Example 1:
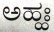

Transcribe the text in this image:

ಅಹ್ಹಃ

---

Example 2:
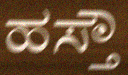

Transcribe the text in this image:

ಹಸ್ತೌ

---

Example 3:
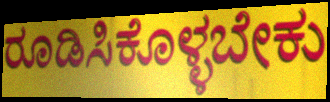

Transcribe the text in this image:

ರೂಡಿಸಿಕೊಳ್ಳಬೇಕು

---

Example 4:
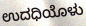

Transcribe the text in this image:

ಉದಧಿಯೊಳು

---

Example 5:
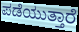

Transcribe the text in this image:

ಪಡೆಯುತ್ತಾರೆ